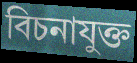
বিচনাযুক্ত